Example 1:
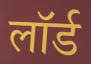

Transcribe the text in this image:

लॉर्ड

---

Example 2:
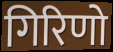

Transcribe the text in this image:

गिरिणो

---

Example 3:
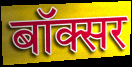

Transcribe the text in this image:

बॉक्सर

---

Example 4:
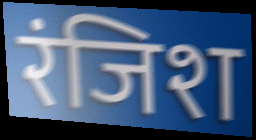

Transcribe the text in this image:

रंजिश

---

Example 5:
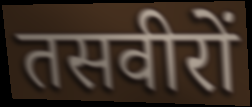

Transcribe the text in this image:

तसवीरों